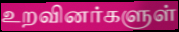
உறவினர்களுள்